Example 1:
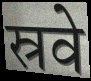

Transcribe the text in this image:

स्रवे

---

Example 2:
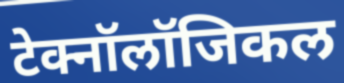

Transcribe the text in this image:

टेक्नॉलॉजिकल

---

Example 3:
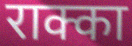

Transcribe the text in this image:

राक्का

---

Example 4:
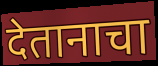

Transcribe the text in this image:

देतानाचा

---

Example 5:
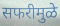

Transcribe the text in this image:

सफरीमुळे